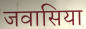
जवासिया